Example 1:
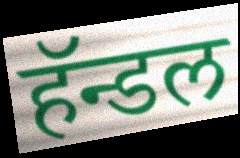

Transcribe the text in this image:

हॅन्डल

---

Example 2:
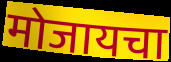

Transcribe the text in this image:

मोजायचा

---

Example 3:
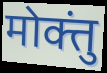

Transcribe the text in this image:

मोक्तुं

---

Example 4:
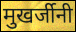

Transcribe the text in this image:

मुखर्जीनी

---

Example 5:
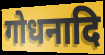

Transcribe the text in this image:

गोधनादि